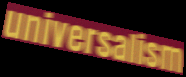
universalism